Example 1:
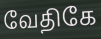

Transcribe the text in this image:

வேதிகே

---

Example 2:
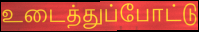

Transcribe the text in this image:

உடைத்துப்போட்டு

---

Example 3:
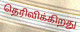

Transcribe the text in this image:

தெரிவிக்கிறது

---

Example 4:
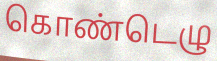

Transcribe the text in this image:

கொண்டெழு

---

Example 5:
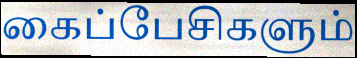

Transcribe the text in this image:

கைப்பேசிகளும்